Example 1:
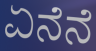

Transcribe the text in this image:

ಏನೆನೆ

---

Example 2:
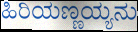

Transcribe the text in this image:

ಹಿರಿಯಣ್ಣಯ್ಯನು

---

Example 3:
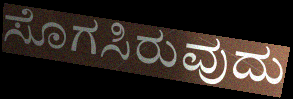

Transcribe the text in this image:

ಸೊಗಸಿರುವುದು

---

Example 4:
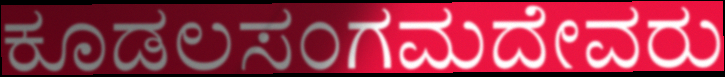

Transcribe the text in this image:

ಕೂಡಲಸಂಗಮದೇವರು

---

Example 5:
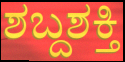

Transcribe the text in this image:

ಶಬ್ದಶಕ್ತಿ